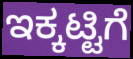
ಇಕ್ಕಟ್ಟಿಗೆ